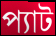
প্যাট